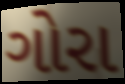
ગોરા